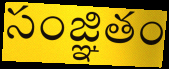
సంజ్ఞితం